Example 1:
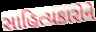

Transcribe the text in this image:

સાહિત્યકારોને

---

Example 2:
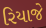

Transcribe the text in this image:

રિયાજે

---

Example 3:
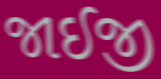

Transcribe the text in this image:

જાઈજી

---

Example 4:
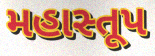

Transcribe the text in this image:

મહાસ્તૂપ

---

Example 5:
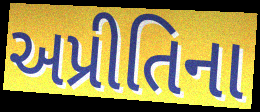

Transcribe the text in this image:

અપ્રીતિના